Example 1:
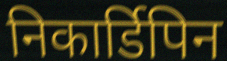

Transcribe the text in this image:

निकार्डिपिन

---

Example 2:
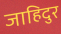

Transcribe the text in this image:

जाहिदुर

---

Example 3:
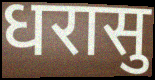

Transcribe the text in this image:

धरासु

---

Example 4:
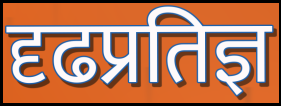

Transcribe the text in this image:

दृढप्रतिज्ञ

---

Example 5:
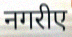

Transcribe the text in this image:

नगरीए